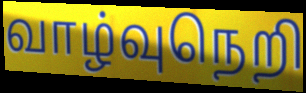
வாழ்வுநெறி